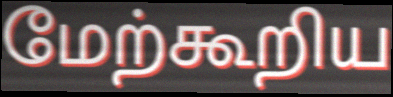
மேற்கூறிய